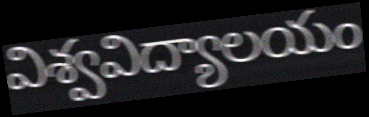
విశ్వవిద్యాలయం